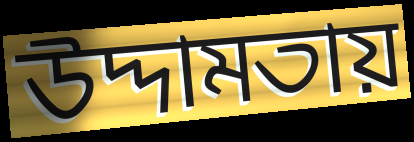
উদ্দামতায়